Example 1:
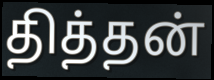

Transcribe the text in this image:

தித்தன்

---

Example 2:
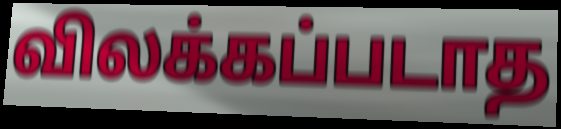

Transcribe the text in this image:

விலக்கப்படாத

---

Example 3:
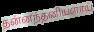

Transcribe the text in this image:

தன்னந்தனியளாய்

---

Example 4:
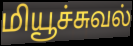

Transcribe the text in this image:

மியூச்சுவல்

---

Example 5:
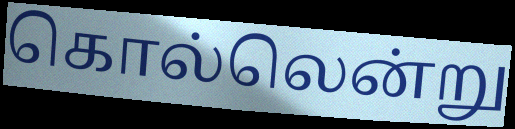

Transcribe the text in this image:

கொல்லென்று